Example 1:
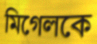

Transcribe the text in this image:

মিগেলকে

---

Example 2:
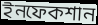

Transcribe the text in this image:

ইনফেকশান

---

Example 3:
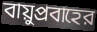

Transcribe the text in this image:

বায়ুপ্রবাহের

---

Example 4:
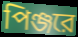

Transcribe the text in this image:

পিঞ্জরে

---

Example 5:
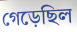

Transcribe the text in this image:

গেড়েছিল